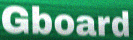
Gboard